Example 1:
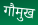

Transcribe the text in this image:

गौमुख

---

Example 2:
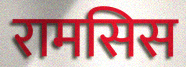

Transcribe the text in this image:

रामसिस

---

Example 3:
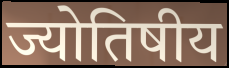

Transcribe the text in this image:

ज्योतिषीय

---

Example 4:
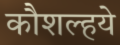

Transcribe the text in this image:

कौशल्हये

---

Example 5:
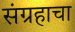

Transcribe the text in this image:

संग्रहाचा